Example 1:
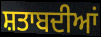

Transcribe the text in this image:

ਸ਼ਤਾਬਦੀਆਂ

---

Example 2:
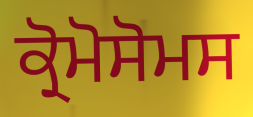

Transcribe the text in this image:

ਕ੍ਰੋਮੋਸੋਮਸ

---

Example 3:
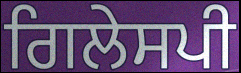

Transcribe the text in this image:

ਗਿਲੇਸਪੀ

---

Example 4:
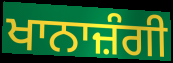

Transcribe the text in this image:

ਖਾਨਾਜ਼ੰਗੀ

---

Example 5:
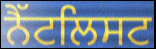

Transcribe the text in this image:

ਨੈੱਟਲਿਸਟ